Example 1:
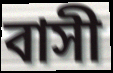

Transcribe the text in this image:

বাসী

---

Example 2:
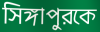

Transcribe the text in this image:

সিঙ্গাপুরকে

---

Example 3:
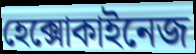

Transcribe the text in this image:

হেক্সোকাইনেজ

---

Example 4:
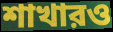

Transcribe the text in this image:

শাখারও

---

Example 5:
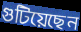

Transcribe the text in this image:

গুটিয়েছেন